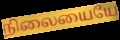
நிலையையே